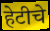
हेटीचे